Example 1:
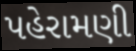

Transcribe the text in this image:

પહેરામણી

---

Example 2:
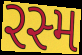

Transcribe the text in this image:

રસ્મ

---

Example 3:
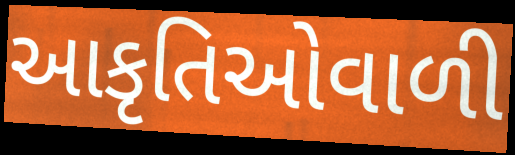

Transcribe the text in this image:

આકૃતિઓવાળી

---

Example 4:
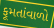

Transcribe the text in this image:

ફૂમતાંવાળો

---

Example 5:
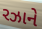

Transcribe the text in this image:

રઝાને